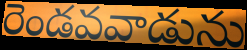
రెండవవాడును